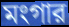
মংগার